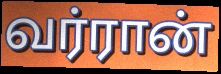
வர்ரான்